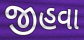
જીહવા